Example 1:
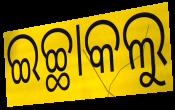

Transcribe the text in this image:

ଇଚ୍ଛାକଲୁ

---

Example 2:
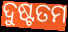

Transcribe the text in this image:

ଦୁଷ୍ଟତମ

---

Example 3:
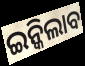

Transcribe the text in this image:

ଇନ୍କିଲାବ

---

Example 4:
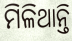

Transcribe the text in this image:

ମିଳିଥାନ୍ତି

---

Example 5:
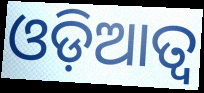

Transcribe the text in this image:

ଓଡ଼ିଆତ୍ୱ